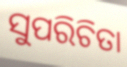
ସୁପରିଚିତା